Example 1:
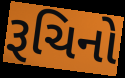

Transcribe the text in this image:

રૂચિનો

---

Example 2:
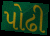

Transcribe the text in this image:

પોઢી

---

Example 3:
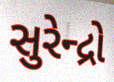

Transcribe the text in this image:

સુરેન્દ્રો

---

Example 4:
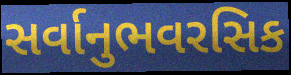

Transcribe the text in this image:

સર્વાનુભવરસિક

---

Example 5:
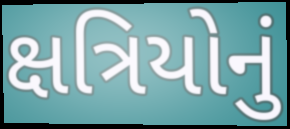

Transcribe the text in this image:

ક્ષત્રિયોનું